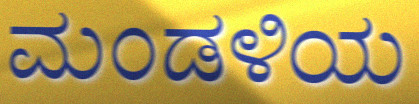
ಮಂಡಳಿಯ